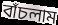
বাঁচলাম